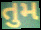
તુમ